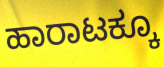
ಹಾರಾಟಕ್ಕೂ